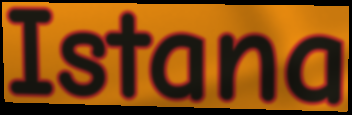
Istana